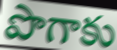
పొగాకు